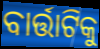
ବାର୍ତ୍ତାଟିକୁ